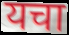
यचा